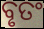
ବୃତଂ